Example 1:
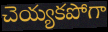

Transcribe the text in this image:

చెయ్యకపోగా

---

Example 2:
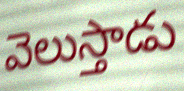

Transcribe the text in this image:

వెలుస్తాడు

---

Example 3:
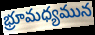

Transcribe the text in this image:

భ్రూమధ్యమున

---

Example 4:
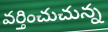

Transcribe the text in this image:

వర్తించుచున్న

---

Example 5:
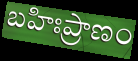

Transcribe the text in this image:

బహిఃప్రాణం